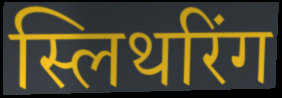
स्लिथरिंग